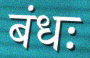
बंधः